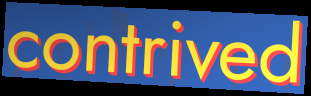
contrived